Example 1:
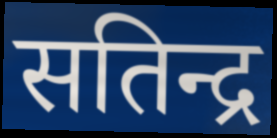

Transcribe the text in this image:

सतिन्द्र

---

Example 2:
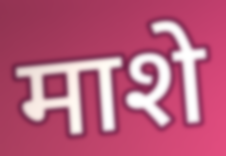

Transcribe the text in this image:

माशे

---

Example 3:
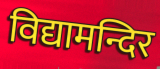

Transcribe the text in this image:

विद्यामन्दिर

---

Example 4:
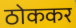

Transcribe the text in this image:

ठोककर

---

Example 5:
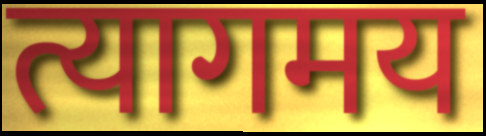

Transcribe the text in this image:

त्यागमय